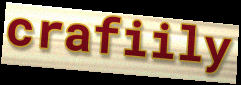
crafiily